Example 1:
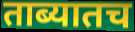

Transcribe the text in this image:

ताब्यातच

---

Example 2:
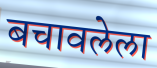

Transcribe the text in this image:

बचावलेला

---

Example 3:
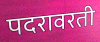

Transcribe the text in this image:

पदरावरती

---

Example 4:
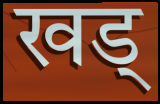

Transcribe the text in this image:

खड्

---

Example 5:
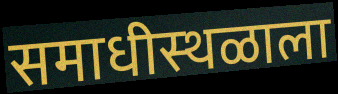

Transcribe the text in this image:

समाधीस्थळाला